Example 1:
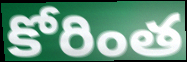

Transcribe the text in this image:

కోరింత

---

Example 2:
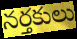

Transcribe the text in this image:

నర్తకులు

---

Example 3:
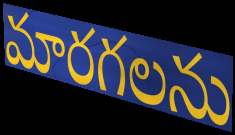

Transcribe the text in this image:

మారగలను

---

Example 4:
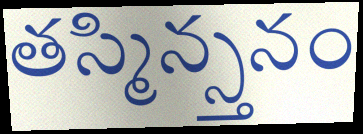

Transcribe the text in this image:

తస్మిన్స్తనం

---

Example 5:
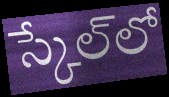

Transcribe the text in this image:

స్కేల్‌లో